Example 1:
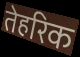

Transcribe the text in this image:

तेहरिक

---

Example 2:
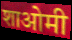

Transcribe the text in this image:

शाओमी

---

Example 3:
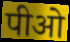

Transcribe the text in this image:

पीओ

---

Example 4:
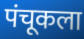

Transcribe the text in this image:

पंचूकला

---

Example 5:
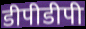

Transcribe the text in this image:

डीपीडीपी